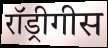
रॉड्रीगीस